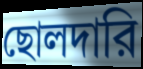
ছোলদারি